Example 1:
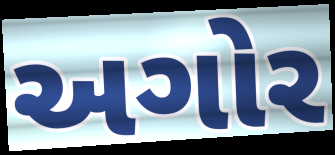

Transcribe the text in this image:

અગોર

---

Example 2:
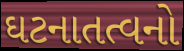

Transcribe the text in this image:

ઘટનાતત્વનો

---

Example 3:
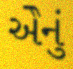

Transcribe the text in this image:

એેનું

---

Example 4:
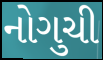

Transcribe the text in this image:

નોગુચી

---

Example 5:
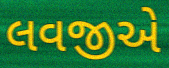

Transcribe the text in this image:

લવજીએ